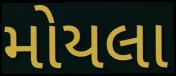
મોયલા